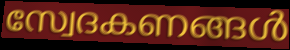
സ്വേദകണങ്ങൾ